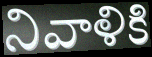
నివాళికి